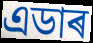
এডাৰ